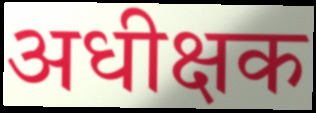
अधीक्षक